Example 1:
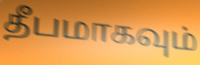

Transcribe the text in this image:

தீபமாகவும்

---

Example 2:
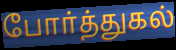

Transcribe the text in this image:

போர்த்துகல்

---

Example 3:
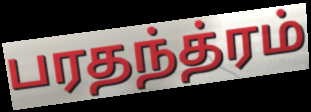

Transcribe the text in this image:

பரதந்த்ரம்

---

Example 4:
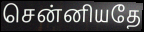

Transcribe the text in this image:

சென்னியதே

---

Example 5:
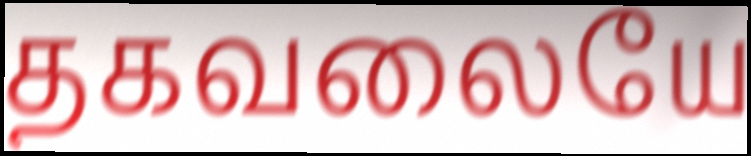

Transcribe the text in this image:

தகவலையே